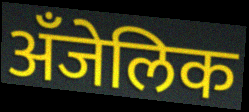
अँजेलिक